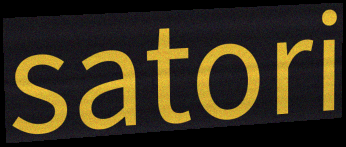
satori